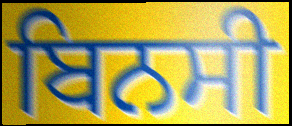
ਬਿਨਸੀ